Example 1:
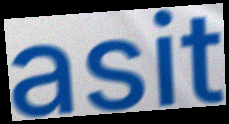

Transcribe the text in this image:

asit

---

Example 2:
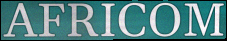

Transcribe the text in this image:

AFRICOM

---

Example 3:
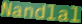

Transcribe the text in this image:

Nandlal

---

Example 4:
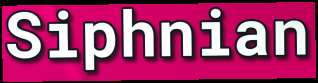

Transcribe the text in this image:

Siphnian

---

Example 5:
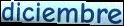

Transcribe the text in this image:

diciembre